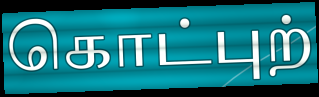
கொட்புற்